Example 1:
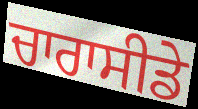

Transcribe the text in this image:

ਚਾਰਾਸੀਡੇ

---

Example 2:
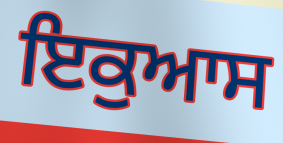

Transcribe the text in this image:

ਇਕੁਆਸ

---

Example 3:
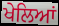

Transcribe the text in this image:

ਖੇਲਿਆਂ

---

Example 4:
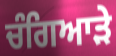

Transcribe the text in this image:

ਚੰਗਿਆੜੇ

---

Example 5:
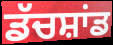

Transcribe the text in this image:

ਡੱਚਸ਼ਾਂਡ